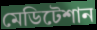
মেডিটেশান